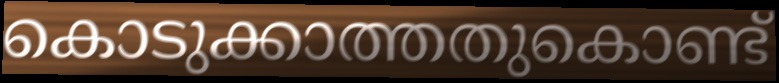
കൊടുക്കാത്തതുകൊണ്ട്